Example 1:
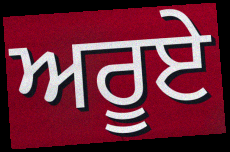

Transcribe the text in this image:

ਅਰੂਏ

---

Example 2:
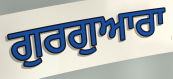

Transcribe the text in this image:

ਗੁਰਗੁਆਰਾ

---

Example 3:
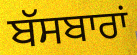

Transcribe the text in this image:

ਬੱਸਬਾਰਾਂ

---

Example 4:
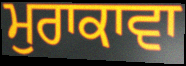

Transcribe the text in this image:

ਮੁਰਾਕਾਵਾ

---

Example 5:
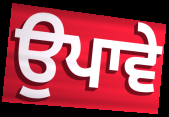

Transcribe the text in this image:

ਉਪਾਵੇ